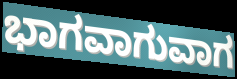
ಭಾಗವಾಗುವಾಗ